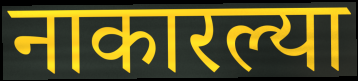
नाकारल्या